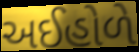
અઈહોળે